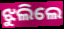
ଝୁଲିଲେ